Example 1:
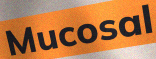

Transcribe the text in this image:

Mucosal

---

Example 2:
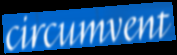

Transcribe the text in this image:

circumvent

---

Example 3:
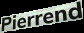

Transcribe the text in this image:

Pierrend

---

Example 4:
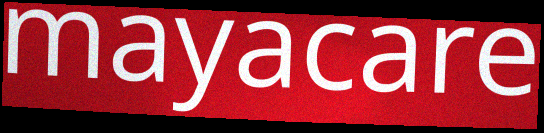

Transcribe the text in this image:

mayacare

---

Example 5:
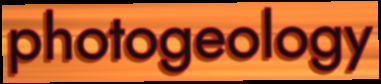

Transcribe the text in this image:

photogeology